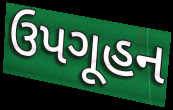
ઉપગૂહન